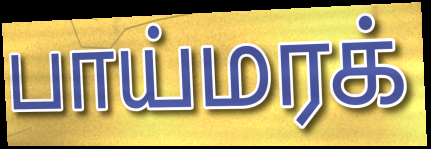
பாய்மரக்